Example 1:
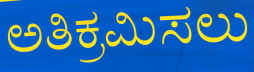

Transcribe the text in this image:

ಅತಿಕ್ರಮಿಸಲು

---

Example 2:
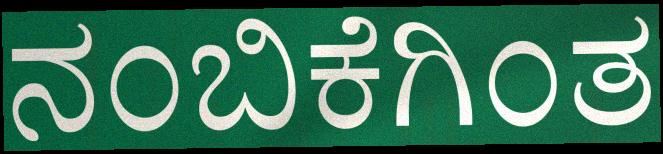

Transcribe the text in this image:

ನಂಬಿಕೆಗಿಂತ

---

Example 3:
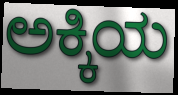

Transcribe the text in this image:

ಅಕ್ಕಿಯ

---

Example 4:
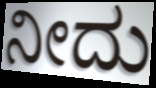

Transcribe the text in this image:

ನೀದು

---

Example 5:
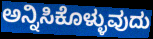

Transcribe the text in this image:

ಅನ್ನಿಸಿಕೊಳ್ಳುವುದು